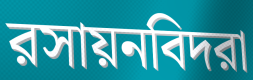
রসায়নবিদরা